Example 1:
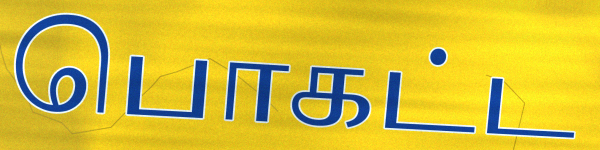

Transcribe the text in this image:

பொகட்ட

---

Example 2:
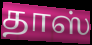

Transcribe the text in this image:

தாஸ்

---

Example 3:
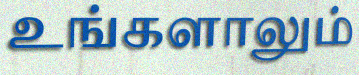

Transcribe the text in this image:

உங்களாலும்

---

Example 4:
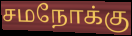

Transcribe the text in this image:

சமநோக்கு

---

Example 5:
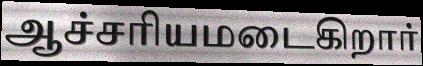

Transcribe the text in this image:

ஆச்சரியமடைகிறார்